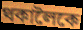
থকালৈকে